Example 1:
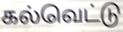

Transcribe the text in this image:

கல்வெட்டு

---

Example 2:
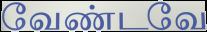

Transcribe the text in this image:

வேண்டவே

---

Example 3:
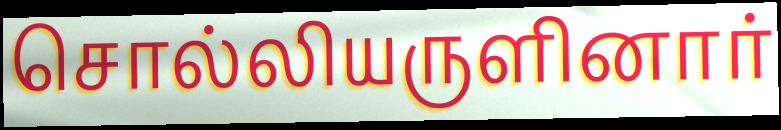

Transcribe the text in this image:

சொல்லியருளினார்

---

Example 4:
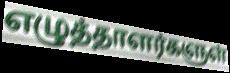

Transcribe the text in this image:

எழுத்தாளர்களுள்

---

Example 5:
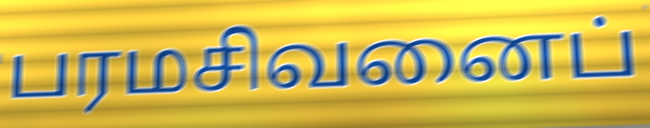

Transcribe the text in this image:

பரமசிவனைப்